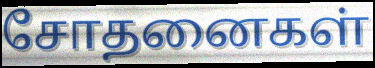
சோதனைகள்